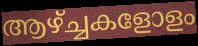
ആഴ്ച്ചകളോളം